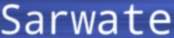
Sarwate